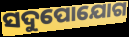
ସଦୁପୋଯୋଗ